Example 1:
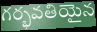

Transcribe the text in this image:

గర్భవతియైన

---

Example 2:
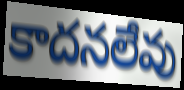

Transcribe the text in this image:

కాదనలేవు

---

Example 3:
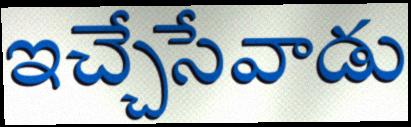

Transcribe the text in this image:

ఇచ్చేసేవాడు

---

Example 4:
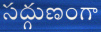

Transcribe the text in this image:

సద్గుణంగా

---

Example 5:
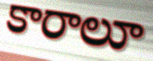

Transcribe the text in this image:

కారాలూ